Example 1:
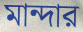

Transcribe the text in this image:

মান্দার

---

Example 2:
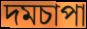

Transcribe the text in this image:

দমচাপা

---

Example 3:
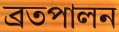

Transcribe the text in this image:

ব্রতপালন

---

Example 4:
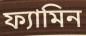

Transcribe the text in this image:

ফ্যামিন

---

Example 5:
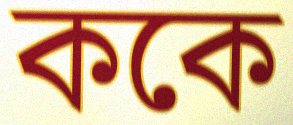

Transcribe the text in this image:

ককে